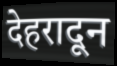
देहरादून